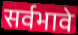
सर्वभावे